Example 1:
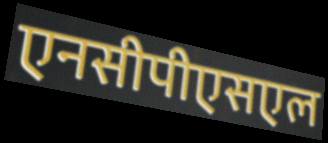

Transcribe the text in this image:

एनसीपीएसएल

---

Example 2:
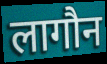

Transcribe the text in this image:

लागौन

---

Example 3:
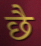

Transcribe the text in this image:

छै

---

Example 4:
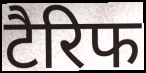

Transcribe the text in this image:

टैरिफ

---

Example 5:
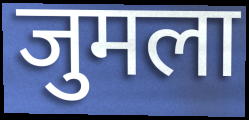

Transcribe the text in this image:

जुमला